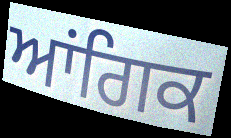
ਆਂਗਿਕ